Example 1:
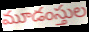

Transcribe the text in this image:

మూడంస్తుల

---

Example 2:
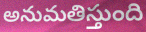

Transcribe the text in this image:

అనుమతిస్తుంది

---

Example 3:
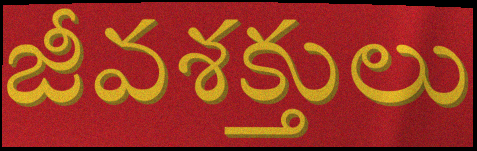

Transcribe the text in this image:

జీవశక్తులు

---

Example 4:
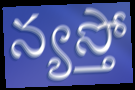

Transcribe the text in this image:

న్యస్తో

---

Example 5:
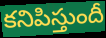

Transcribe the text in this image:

కనిపిస్తుందీ